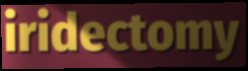
iridectomy